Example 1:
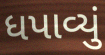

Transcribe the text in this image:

ધપાવ્યું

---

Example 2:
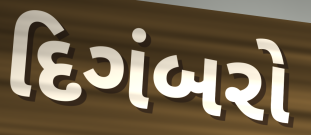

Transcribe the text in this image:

દિગંબરો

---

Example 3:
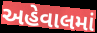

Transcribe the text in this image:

અહેવાલમાં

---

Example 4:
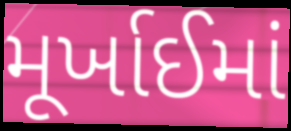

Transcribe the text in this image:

મૂર્ખાઈમાં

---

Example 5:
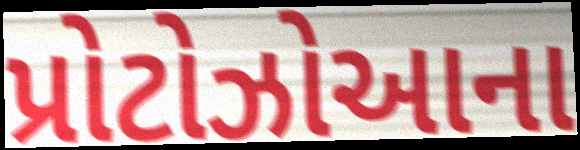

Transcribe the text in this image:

પ્રોટોઝોઆના